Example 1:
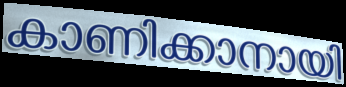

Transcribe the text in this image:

കാണിക്കാനായി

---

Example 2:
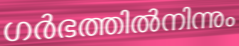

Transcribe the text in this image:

ഗർഭത്തിൽനിന്നും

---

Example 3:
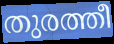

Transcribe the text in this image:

തുരത്തീ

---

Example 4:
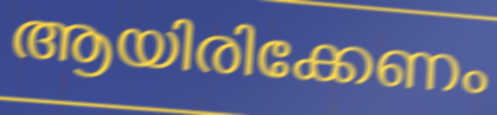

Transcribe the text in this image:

ആയിരിക്കേണം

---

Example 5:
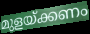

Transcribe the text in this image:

മുളയ്ക്കണം